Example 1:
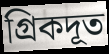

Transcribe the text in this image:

গ্রিকদূত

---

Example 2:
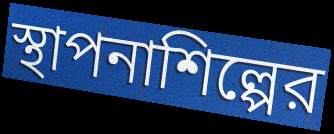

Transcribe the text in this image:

স্থাপনাশিল্পের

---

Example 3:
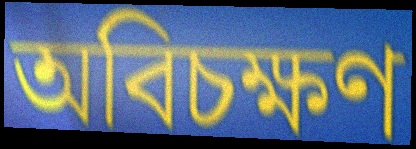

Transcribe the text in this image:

অবিচক্ষণ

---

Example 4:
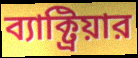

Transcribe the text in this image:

ব্যাক্ট্রিয়ার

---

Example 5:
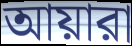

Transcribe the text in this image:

আয়ারা